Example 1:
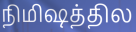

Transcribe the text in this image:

நிமிஷத்தில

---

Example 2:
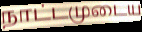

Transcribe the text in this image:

நாட்டமுடைய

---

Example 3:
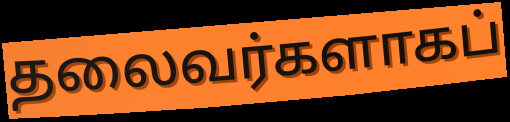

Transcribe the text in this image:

தலைவர்களாகப்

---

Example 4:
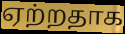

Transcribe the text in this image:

ஏற்றதாக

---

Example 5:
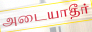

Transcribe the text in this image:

அடையாதீர்